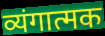
व्यंगात्मक